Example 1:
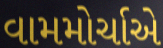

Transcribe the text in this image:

વામમોર્ચાએ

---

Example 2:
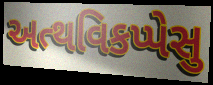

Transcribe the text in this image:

અત્થવિકપ્પેસુ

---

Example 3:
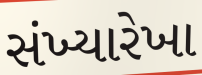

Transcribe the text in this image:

સંખ્યારેખા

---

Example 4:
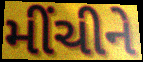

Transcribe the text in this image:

મીંચીને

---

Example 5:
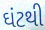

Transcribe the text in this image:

ઘંટથી